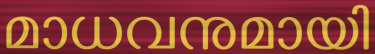
മാധവനുമായി